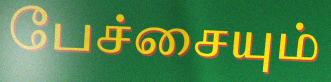
பேச்சையும்